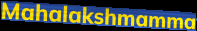
Mahalakshmamma